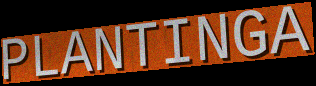
PLANTINGA